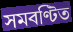
সমবণ্টিত